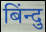
बिंन्दु